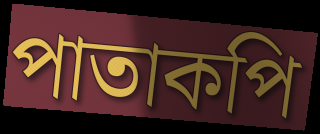
পাতাকপি